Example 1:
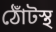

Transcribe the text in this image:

ঠোঁটস্থ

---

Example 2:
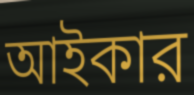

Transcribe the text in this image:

আইকার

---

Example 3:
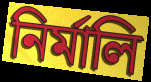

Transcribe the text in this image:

নির্মালি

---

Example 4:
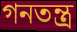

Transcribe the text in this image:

গনতন্ত্র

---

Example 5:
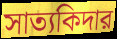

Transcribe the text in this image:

সাত্যকিদার